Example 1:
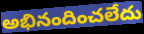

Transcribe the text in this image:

అభినందించలేదు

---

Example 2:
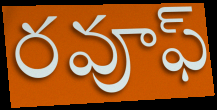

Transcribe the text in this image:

రవూఫ్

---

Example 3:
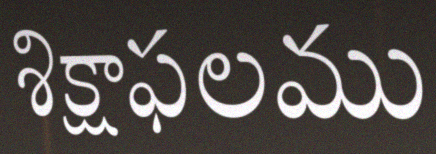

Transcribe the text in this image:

శిక్షాఫలము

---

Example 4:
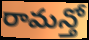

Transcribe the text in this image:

రామన్తో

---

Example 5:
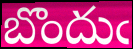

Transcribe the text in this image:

బొందుఁ